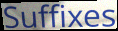
Suffixes